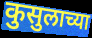
कुसुलाच्या